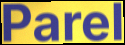
Parel